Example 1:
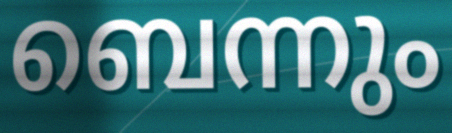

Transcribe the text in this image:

ബെന്നും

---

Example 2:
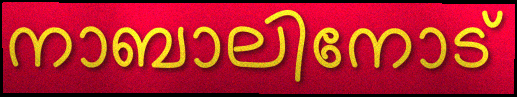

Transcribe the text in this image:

നാബാലിനോട്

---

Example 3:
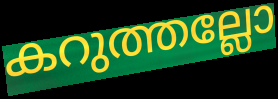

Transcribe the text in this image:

കറുത്തല്ലോ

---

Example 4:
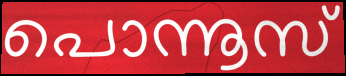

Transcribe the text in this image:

പൊന്നൂസ്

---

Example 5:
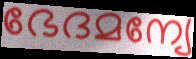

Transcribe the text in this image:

ഭേദമന്യേ